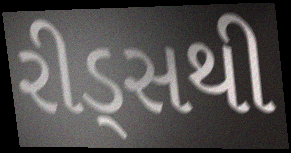
રીડ્સથી